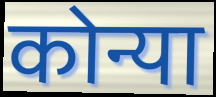
कोन्या